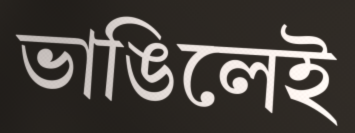
ভাঙিলেই